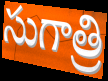
సుగాత్రి